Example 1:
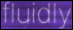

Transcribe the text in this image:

fluidly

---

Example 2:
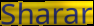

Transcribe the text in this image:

Sharar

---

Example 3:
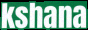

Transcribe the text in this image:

kshana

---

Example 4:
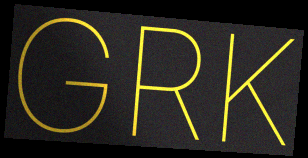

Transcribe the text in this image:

GRK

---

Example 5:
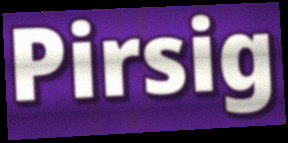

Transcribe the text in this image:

Pirsig